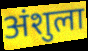
अंशुला